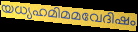
യധ്യഹമിമമവേദിഷം